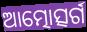
ଆତ୍ମୋତ୍ସର୍ଗ